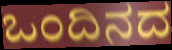
ಒಂದಿನದ